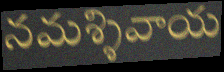
నమశ్శివాయ